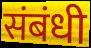
संबंधी